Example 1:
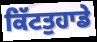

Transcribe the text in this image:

ਕਿੱਟਤੁਹਾਡੇ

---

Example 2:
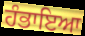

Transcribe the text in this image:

ਹੰਭਾਇਆ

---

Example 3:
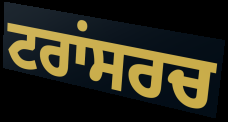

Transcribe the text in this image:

ਟਰਾਂਸਰਚ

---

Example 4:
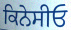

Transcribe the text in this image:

ਕਿਨੇਸੀਓ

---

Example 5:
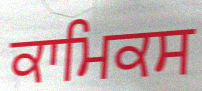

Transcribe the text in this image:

ਕਾਮਿਕਸ